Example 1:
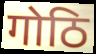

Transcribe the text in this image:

गोठि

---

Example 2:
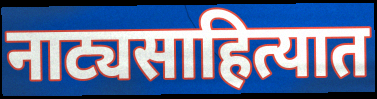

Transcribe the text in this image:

नाट्यसाहित्यात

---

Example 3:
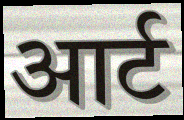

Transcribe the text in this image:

आर्ट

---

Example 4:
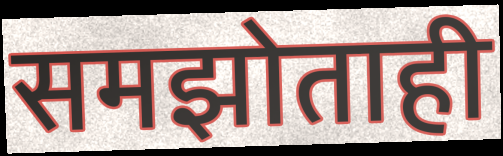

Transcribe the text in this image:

समझोताही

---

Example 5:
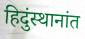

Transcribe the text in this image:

हिदुंस्थानांत